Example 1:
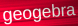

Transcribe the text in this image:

geogebra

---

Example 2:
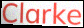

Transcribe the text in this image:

Clarke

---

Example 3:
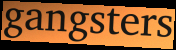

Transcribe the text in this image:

gangsters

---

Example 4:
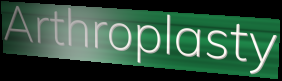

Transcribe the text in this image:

Arthroplasty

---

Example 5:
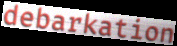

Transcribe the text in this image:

debarkation